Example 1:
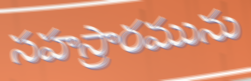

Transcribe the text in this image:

సహస్రారమును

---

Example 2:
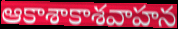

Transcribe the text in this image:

ఆకాశాకాశవాహన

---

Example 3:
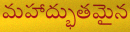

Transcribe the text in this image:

మహాద్భుతమైన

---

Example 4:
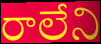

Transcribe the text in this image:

రాలేని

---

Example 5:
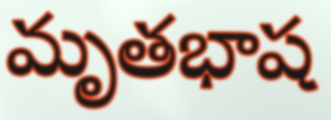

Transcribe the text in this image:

మృతభాష